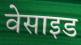
वेसाइड